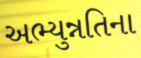
અભ્યુન્નતિના